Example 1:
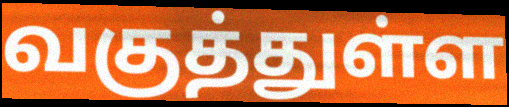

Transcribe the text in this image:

வகுத்துள்ள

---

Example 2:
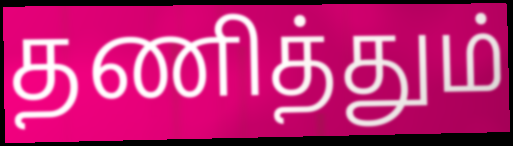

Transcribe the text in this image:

தணித்தும்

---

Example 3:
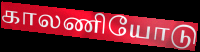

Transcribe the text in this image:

காலணியோடு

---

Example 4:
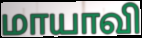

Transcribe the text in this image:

மாயாவி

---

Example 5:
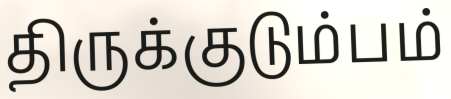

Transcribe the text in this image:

திருக்குடும்பம்